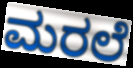
ಮರಲೆ